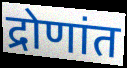
द्रोणांत